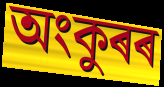
অংকুৰৰ